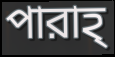
পারাহ্